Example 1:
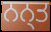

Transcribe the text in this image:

ਨਨ੍ਤ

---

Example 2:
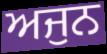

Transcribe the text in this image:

ਅਜੁਨ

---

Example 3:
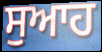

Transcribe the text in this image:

ਸੁਆਹ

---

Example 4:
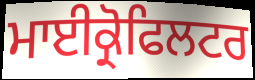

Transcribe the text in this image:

ਮਾਈਕ੍ਰੋਫਿਲਟਰ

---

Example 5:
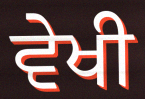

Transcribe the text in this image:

ਵੇਖੀ